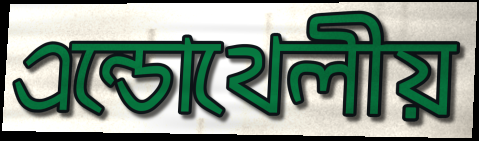
এন্ডোথেলীয়